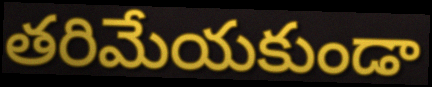
తరిమేయకుండా